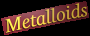
Metalloids